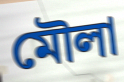
মৌলা